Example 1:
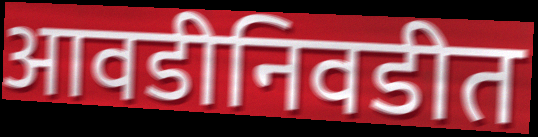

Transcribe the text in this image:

आवडीनिवडीत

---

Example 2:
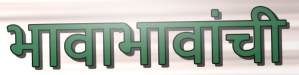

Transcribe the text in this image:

भावाभावांची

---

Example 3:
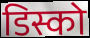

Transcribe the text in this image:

डिस्को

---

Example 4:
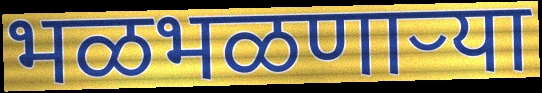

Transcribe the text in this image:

भळभळणाऱ्या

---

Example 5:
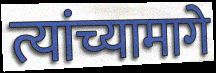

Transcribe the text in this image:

त्यांच्यामागे